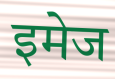
इमेज